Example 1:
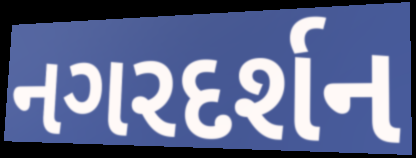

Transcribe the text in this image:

નગરદર્શન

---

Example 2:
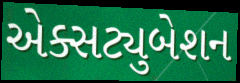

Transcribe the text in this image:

એક્સટ્યુબેશન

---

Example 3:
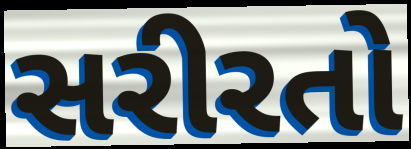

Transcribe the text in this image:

સરીરતો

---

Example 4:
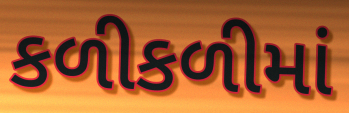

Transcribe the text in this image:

કળીકળીમાં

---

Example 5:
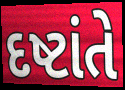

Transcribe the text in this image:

દષ્ટાંતે